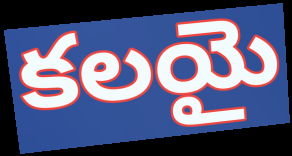
కలయై